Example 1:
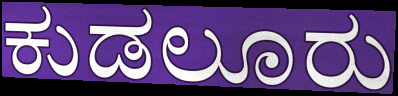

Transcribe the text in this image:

ಕುಡಲೂರು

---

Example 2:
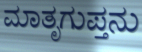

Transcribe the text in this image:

ಮಾತೃಗುಪ್ತನು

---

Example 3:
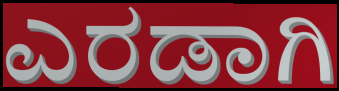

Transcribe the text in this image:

ಎರಡಾಗಿ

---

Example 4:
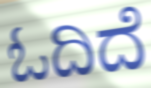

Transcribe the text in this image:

ಓದಿದೆ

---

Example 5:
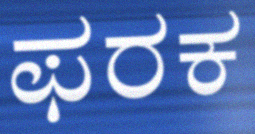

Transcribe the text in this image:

ಫರಕ